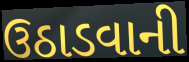
ઉઠાડવાની